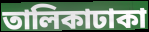
তালিকাঢাকা